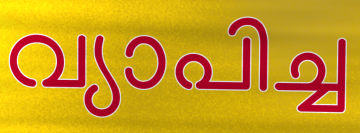
വ്യാപിച്ച